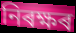
নিৰক্ষৰ